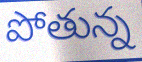
పోతున్న